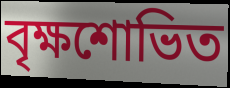
বৃক্ষশোভিত